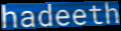
hadeeth